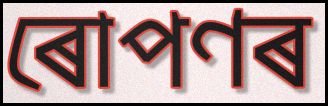
ৰোপণৰ